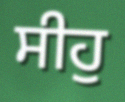
ਸੀਹੁ